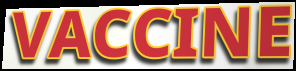
VACCINE